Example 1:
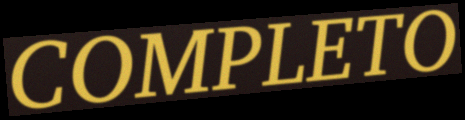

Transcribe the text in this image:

COMPLETO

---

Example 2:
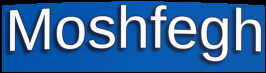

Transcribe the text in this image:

Moshfegh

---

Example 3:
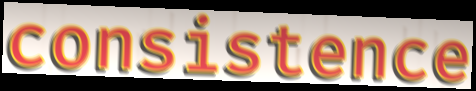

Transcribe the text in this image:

consistence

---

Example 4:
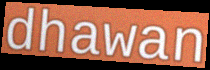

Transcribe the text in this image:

dhawan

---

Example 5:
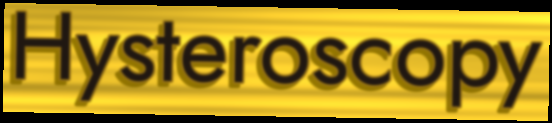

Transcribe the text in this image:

Hysteroscopy